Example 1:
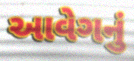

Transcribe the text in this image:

આવેગનું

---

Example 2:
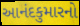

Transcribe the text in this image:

આનંદકુમારનો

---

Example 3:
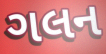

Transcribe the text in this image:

ગલન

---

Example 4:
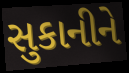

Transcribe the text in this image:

સુકાનીને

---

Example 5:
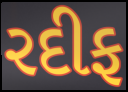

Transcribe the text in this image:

રદીફ